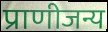
प्राणीजन्य